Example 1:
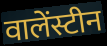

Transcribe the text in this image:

वालेंस्टीन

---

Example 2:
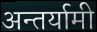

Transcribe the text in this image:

अन्तर्यामी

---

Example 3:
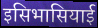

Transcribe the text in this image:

इसिभासियाई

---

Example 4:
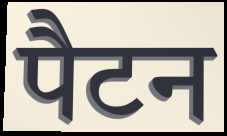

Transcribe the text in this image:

पैटन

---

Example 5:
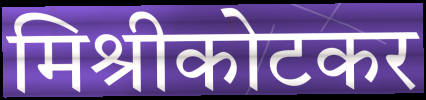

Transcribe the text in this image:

मिश्रीकोटकर